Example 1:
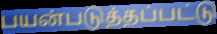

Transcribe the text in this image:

பயன்படுத்தப்பட்டு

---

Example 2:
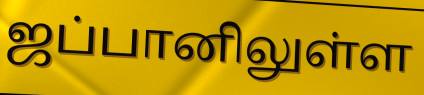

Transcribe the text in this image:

ஜப்பானிலுள்ள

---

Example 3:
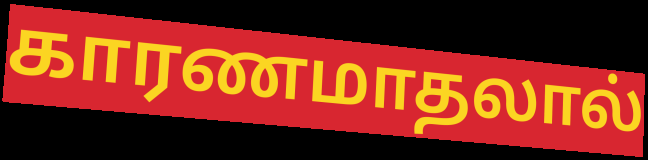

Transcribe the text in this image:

காரணமாதலால்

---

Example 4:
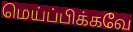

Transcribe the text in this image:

மெய்ப்பிக்கவே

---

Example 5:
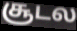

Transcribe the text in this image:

சூடல